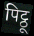
पिट्ठू